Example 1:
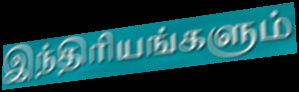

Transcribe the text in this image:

இந்திரியங்களும்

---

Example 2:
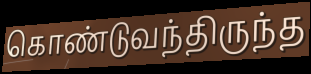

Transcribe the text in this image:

கொண்டுவந்திருந்த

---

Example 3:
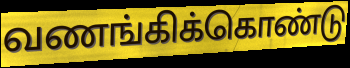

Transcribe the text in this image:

வணங்கிக்கொண்டு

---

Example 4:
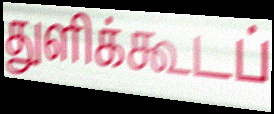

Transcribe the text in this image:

துளிக்கூடப்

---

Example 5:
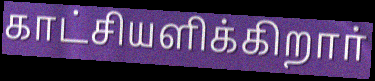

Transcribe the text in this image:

காட்சியளிக்கிறார்